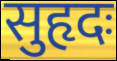
सुहृदः